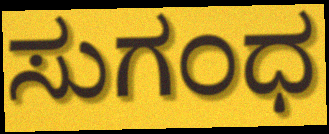
ಸುಗಂಧ